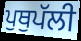
ਪੁਥੁਪੱਲੀ